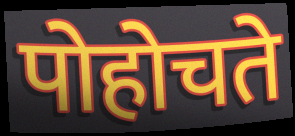
पोहोचते